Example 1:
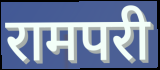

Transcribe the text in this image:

रामपरी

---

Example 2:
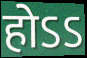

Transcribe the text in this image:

होऽऽ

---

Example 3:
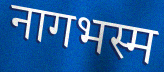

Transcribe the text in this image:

नागभस्म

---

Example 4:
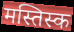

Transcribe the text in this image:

मस्तिस्क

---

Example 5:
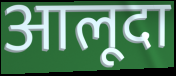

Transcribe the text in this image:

आलूदा